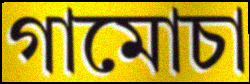
গামোচা